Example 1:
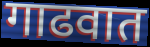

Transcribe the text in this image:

गाढवात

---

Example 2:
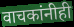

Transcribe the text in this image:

वाचकांनीही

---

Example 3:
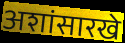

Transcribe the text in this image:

अशांसारखे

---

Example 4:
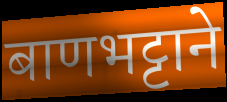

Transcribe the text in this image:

बाणभट्टाने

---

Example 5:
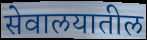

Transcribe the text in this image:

सेवालयातील